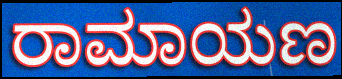
ರಾಮಾಯಣ